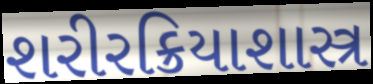
શરીરક્રિયાશાસ્ત્ર